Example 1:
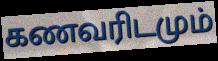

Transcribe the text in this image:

கணவரிடமும்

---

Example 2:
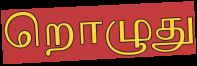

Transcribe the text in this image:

றொழுது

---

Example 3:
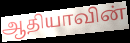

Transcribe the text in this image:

ஆதியாவின்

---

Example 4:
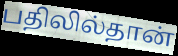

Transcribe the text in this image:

பதிலில்தான்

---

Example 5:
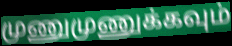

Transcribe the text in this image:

முணுமுணுக்கவும்